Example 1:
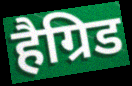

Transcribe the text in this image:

हैग्रिड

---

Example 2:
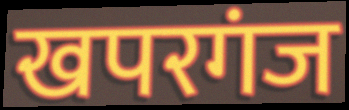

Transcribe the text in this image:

खपरगंज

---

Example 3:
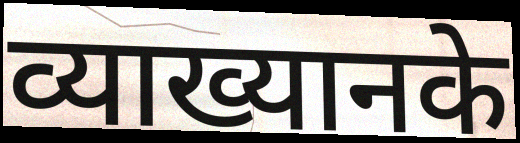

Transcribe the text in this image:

व्याख्यानके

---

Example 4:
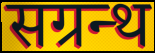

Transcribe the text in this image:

सग्रन्थ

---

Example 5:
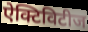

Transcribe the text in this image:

ऐक्टिविटीज